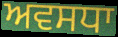
ਅਵਸਧਾ